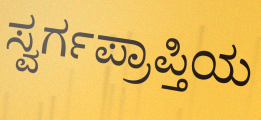
ಸ್ವರ್ಗಪ್ರಾಪ್ತಿಯ